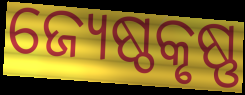
ଜ୍ୟେଷ୍ଠକୃଷ୍ଣ